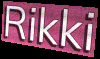
Rikki